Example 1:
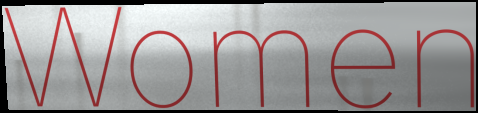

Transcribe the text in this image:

Women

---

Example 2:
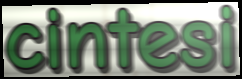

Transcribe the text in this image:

cintesi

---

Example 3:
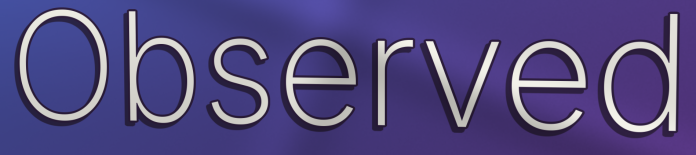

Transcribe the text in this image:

Observed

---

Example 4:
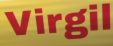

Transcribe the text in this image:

Virgil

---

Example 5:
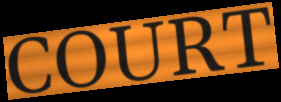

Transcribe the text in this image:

COURT